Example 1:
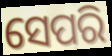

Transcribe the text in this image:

ସେପରି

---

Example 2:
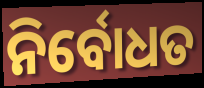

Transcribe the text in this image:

ନିର୍ବୋଧତ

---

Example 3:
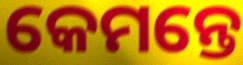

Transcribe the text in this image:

କେମନ୍ତେ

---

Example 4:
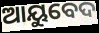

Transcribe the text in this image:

ଆୟୁବେଦ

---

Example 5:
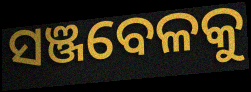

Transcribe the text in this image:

ସଞ୍ଜବେଳକୁ